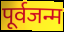
पूर्वजन्म